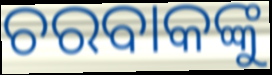
ଚରବାକଙ୍କୁ